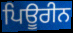
ਪਿਊਰੀਨ